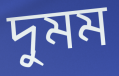
দুমম